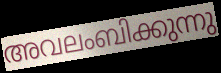
അവലംബിക്കുന്നു